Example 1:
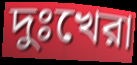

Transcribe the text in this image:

দুঃখেরা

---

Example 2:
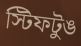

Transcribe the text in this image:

স্টিফটুঙ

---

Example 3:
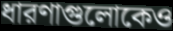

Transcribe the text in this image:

ধারণাগুলোকেও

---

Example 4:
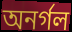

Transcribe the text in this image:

অনর্গল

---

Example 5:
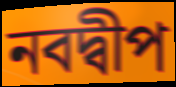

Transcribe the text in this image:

নবদ্বীপ